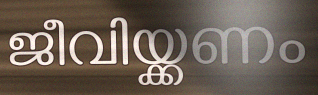
ജീവിയ്ക്കണം